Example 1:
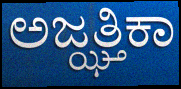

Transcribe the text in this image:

ಅಜ್ಝತ್ತಿಕಾ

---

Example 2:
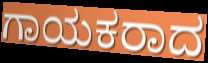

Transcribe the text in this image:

ಗಾಯಕರಾದ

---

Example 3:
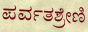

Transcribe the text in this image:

ಪರ್ವತಶ್ರೇಣಿ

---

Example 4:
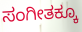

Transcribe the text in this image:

ಸಂಗೀತಕ್ಕೂ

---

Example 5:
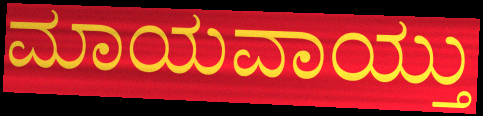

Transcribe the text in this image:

ಮಾಯವಾಯ್ತು